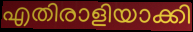
എതിരാളിയാക്കി